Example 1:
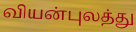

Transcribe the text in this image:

வியன்புலத்து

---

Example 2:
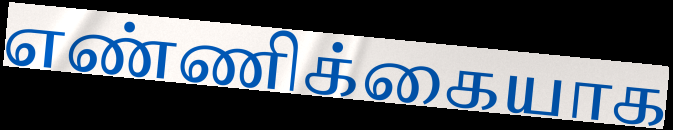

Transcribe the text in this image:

எண்ணிக்கையாக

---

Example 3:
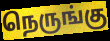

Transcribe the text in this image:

நெருங்கு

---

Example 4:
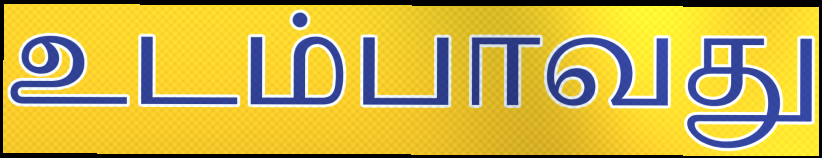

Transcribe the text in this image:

உடம்பாவது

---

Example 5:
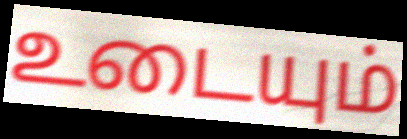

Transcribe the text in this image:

உடையும்